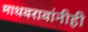
माधवरावांनीही